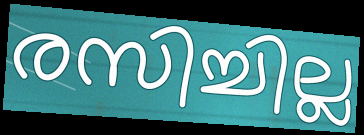
രസിച്ചില്ല